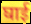
घाई